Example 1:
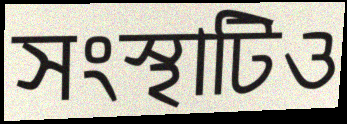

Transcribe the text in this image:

সংস্থাটিও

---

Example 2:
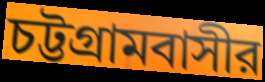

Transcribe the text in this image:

চট্টগ্রামবাসীর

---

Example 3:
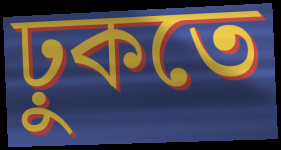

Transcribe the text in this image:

ঢ়ুকতে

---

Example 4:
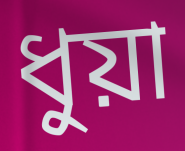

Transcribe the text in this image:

ধুয়া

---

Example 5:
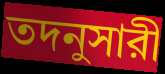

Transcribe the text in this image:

তদনুসারী